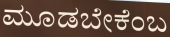
ಮೂಡಬೇಕೆಂಬ